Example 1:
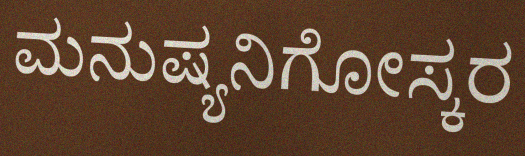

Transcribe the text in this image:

ಮನುಷ್ಯನಿಗೋಸ್ಕರ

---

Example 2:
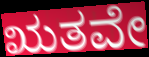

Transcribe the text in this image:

ಋತವೇ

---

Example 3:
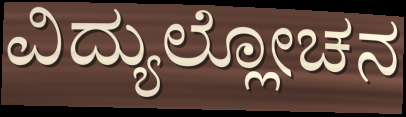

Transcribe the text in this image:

ವಿದ್ಯುಲ್ಲೋಚನ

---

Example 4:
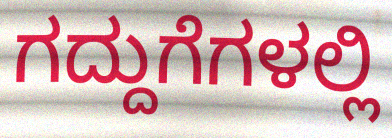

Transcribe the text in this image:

ಗದ್ದುಗೆಗಳಲ್ಲಿ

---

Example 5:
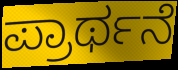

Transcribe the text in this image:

ಪ್ರಾರ್ಥನೆ